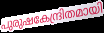
പുരുഷകേന്ദ്രിതമായി